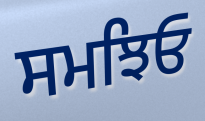
ਸਮਝਿਓ